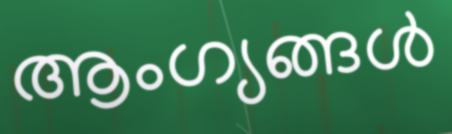
ആംഗ്യങ്ങൾ